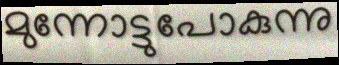
മുന്നോട്ടുപോകുന്നു